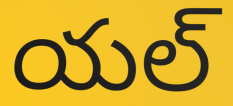
యల్